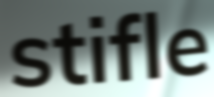
stifle